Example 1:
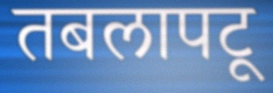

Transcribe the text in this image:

तबलापटू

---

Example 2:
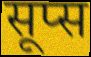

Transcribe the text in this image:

सूप्स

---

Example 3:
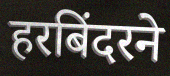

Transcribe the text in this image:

हरबिंदरने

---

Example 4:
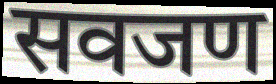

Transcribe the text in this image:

सवजण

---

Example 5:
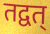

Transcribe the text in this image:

तद्वत्